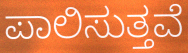
ಪಾಲಿಸುತ್ತವೆ